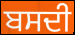
ਬਸਦੀ